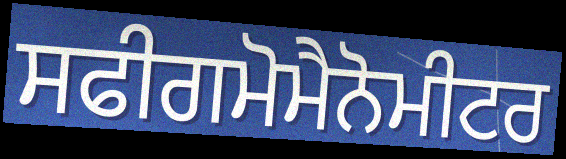
ਸਫੀਗਮੋਮੈਨੋਮੀਟਰ